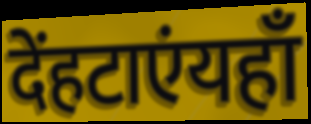
देंहटाएंयहाँ